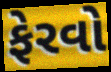
ફેરવો